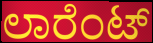
ಲಾರೆಂಟ್